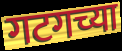
गटगच्या